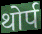
थोर्प